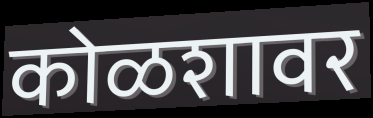
कोळशावर